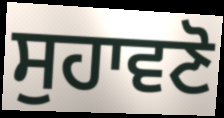
ਸੁਹਾਵਣੋ